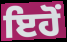
ਇਹੋਂ